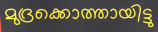
മുദ്രക്കൊത്തായിട്ടു